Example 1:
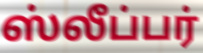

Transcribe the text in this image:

ஸ்லீப்பர்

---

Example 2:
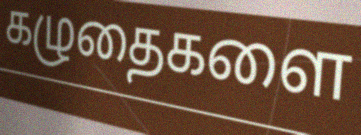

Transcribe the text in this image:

கழுதைகளை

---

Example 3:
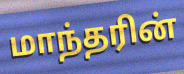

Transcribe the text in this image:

மாந்தரின்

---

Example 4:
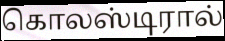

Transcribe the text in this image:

கொலஸ்டிரால்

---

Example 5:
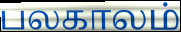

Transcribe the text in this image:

பலகாலம்